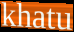
khatu